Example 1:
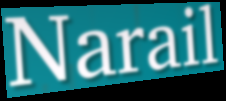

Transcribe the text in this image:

Narail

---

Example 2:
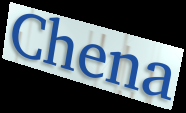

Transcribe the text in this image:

Chena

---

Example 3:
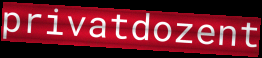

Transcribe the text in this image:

privatdozent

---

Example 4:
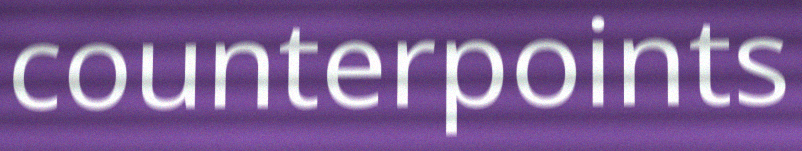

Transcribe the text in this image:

counterpoints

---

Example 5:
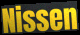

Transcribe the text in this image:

Nissen